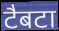
टैबटा